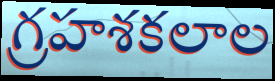
గ్రహశకలాల